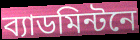
ব্যাডমিন্টনে